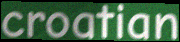
croatian